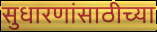
सुधारणांसाठीच्या